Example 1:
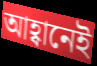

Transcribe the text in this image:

আহ্বানেই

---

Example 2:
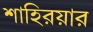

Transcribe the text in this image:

শাহিরয়ার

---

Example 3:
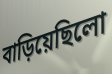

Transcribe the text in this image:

বাড়িয়েছিলো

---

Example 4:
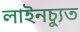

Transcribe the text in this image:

লাইনচ্যুত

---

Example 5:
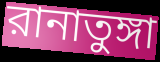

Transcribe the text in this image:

রানাতুঙ্গা